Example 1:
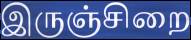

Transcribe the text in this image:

இருஞ்சிறை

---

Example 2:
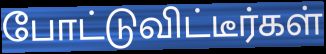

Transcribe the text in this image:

போட்டுவிட்டீர்கள்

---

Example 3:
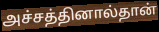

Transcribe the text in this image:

அச்சத்தினால்தான்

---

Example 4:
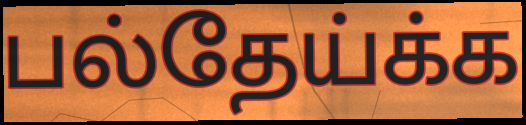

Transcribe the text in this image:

பல்தேய்க்க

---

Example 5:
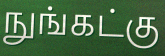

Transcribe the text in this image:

நுங்கட்கு